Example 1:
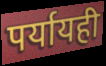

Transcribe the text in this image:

पर्यायही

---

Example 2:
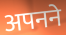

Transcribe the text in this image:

अपनने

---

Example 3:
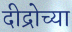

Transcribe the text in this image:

दीद्रोच्या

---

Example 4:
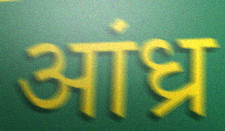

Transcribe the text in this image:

आंध्र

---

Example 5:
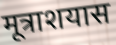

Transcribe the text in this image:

मूत्राशयास